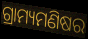
ଗ୍ରାମ୍ୟମଣିଷର